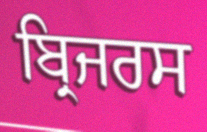
ਬ੍ਰਿਜਰਸ